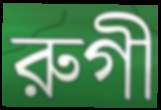
রুগী